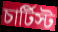
চার্টিস্ট